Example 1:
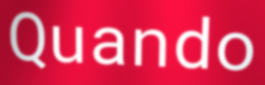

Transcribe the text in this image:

Quando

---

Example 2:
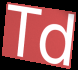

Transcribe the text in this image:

Td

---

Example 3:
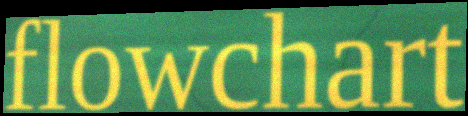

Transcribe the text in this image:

flowchart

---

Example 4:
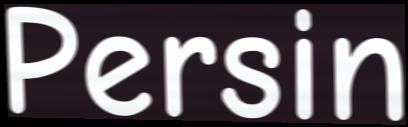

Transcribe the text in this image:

Persin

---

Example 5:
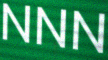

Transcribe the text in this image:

NNN